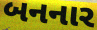
બનનાર